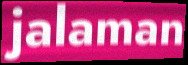
jalaman